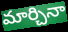
మార్చినా